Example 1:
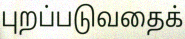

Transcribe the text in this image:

புறப்படுவதைக்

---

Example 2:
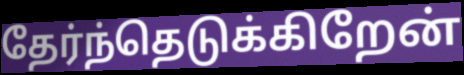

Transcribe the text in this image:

தேர்ந்தெடுக்கிறேன்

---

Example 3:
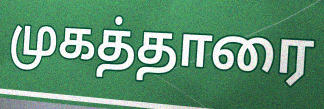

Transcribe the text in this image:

முகத்தாரை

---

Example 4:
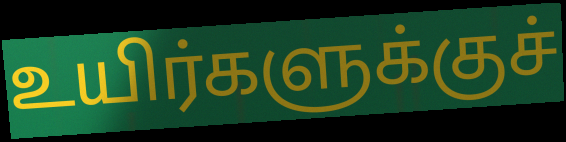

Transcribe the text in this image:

உயிர்களுக்குச்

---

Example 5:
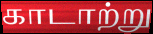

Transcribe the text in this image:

காடாற்று